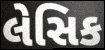
લેસિક